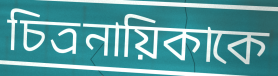
চিত্রনায়িকাকে